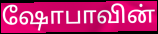
ஷோபாவின்